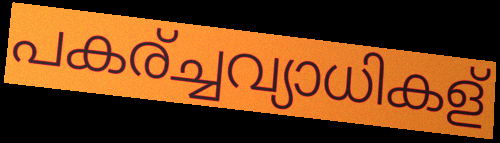
പകര്ച്ചവ്യാധികള്